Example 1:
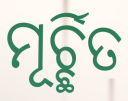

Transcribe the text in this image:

ମୂର୍ଚ୍ଛିତ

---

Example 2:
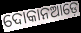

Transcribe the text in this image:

ଦୋକାନଆଡ଼େ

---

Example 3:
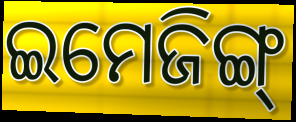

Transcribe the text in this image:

ଇମେଜିଙ୍ଗ୍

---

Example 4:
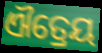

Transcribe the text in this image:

ଐତ୍ରେୟ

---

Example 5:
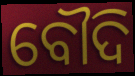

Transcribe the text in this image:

ବୌଦି